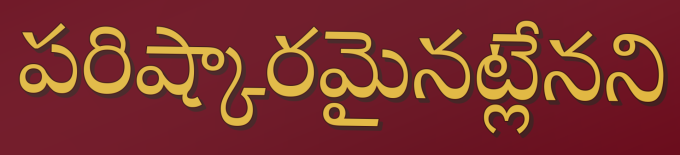
పరిష్కారమైనట్లేనని